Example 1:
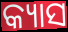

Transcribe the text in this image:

କ୍ୟାସ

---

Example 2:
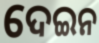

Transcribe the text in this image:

ଦେଇନ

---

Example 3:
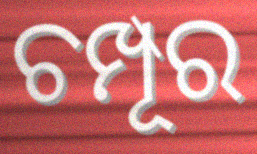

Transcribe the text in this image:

ଚମ୍ପୂର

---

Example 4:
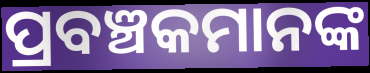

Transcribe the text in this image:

ପ୍ରବଞ୍ଚକମାନଙ୍କ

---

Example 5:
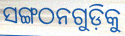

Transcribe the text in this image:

ସଙ୍ଗଠନଗୁଡ଼ିକୁ